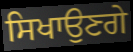
ਸਿਖਾਉਣਗੇ